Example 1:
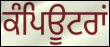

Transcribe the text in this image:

ਕੰਪਿਊਟਰਾਂ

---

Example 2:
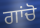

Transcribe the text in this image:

ਗਾਂਚੋ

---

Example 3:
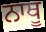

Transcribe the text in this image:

ਨਾਥੂ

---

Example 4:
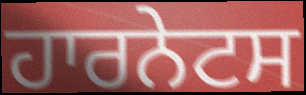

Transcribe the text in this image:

ਹਾਰਨੇਟਸ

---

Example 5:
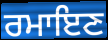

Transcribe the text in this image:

ਰਮਾਇਣ